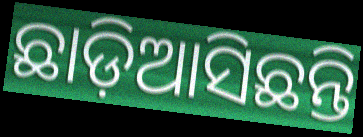
ଛାଡ଼ିଆସିଛନ୍ତି